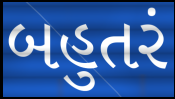
બહુતરં